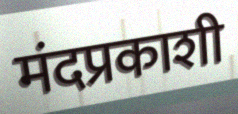
मंदप्रकाशी